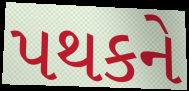
પથકને